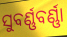
ସୁବର୍ଣ୍ଣବର୍ଣ୍ଣା